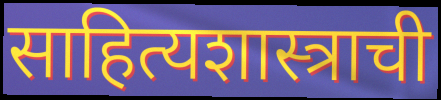
साहित्यशास्त्राची